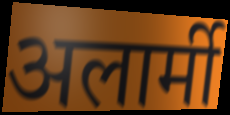
अलार्मी